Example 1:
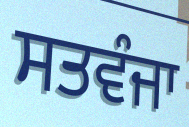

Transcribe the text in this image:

ਸਤਵੰਜਾ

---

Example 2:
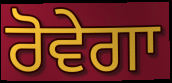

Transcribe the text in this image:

ਰੋਵੇਗਾ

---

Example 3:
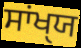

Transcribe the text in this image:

ਸਾਂਖੑਯ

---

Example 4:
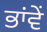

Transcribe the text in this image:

ਭਾਂਵੇਂ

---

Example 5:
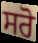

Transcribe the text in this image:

ਸਰੋ